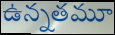
ఉన్నతమూ